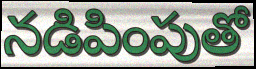
నడిపింపుతో